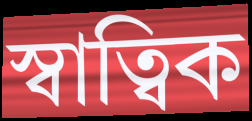
স্বাত্বিক